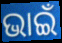
ଭାଇଁ